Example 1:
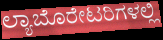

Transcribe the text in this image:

ಲ್ಯಾಬೊರೇಟರಿಗಳಲ್ಲಿ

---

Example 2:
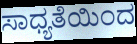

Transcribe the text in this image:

ಸಾಧ್ಯತೆಯಿಂದ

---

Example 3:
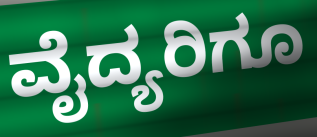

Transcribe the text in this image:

ವೈದ್ಯರಿಗೂ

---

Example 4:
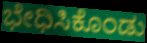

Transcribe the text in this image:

ಭೇಧಿಸಿಕೊಂಡು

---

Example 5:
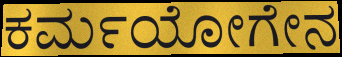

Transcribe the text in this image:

ಕರ್ಮಯೋಗೇನ